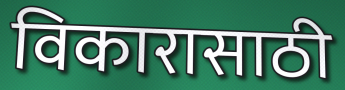
विकारासाठी